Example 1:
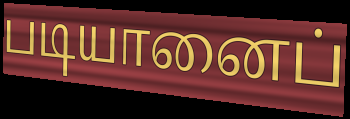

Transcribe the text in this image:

படியானைப்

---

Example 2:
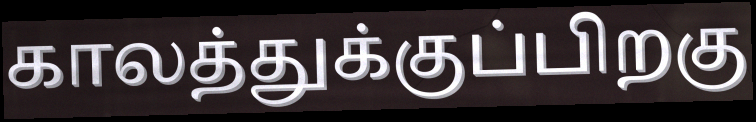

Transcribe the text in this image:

காலத்துக்குப்பிறகு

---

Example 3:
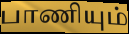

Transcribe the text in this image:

பாணியும்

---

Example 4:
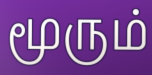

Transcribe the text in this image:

மூரும்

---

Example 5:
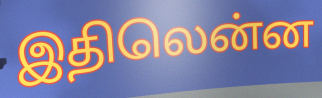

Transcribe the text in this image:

இதிலென்ன